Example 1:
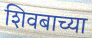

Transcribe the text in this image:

शिवबाच्या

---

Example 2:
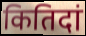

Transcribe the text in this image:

कितिदां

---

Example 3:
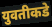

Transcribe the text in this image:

युवतीकडे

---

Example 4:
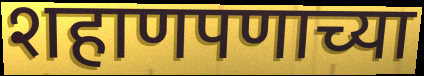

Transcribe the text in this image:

शहाणपणाच्या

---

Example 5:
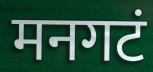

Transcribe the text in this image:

मनगटं